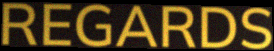
REGARDS